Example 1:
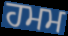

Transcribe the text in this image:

ਹਮਮ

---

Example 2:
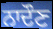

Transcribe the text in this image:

ਨਾਦੌਣ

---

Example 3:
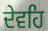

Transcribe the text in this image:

ਦੇਵਹਿ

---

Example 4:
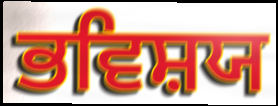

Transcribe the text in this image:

ਭਵਿਸ਼ਯ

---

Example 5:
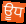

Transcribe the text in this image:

ਊਧ